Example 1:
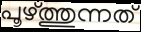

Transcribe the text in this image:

പൂഴ്ത്തുന്നത്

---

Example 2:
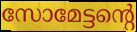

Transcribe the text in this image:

സോമേട്ടന്റെ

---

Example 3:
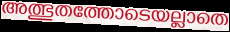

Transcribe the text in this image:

അത്ഭുതത്തോടെയല്ലാതെ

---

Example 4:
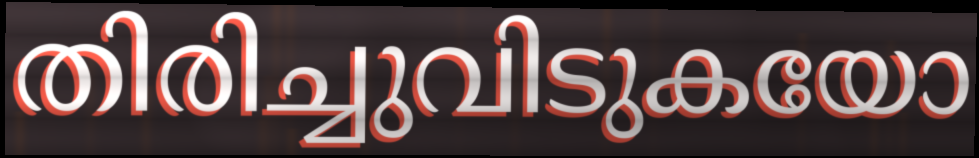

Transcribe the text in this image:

തിരിച്ചുവിടുകയോ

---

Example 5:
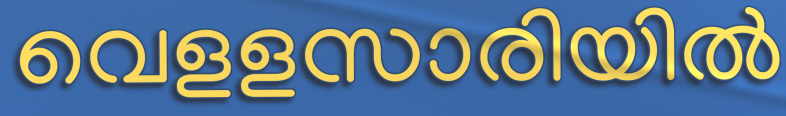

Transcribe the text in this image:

വെളളസാരിയിൽ